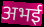
अभई